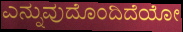
ಎನ್ನುವುದೊಂದಿದೆಯೋ